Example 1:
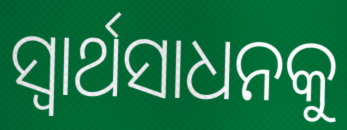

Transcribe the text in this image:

ସ୍ଵାର୍ଥସାଧନକୁ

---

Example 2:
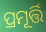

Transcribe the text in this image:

ପ୍ରମୂର୍ତ୍ତି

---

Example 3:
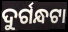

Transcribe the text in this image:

ଦୁର୍ଗନ୍ଧଟା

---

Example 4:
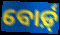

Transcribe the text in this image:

ବୋର୍ଡ଼୍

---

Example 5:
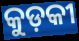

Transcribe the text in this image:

କୁଡ଼କୀ